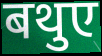
बथुए